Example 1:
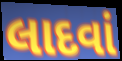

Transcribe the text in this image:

લાદવાં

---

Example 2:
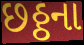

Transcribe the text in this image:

છઠ્ઠના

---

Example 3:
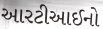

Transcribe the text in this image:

આરટીઆઈનો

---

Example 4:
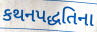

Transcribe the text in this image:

કથનપદ્ધતિના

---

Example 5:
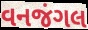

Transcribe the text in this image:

વનજંગલ